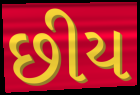
છીય